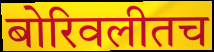
बोरिवलीतच